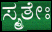
ಸ್ಮೃತೇಃ